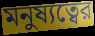
মনুষ্যত্বের